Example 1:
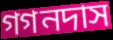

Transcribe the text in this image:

গগনদাস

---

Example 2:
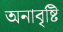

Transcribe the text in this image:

অনাবৃষ্টি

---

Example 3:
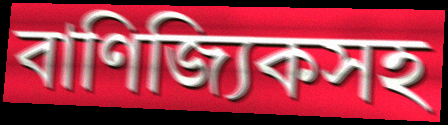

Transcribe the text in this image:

বাণিজ্যিকসহ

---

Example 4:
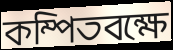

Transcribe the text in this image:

কম্পিতবক্ষে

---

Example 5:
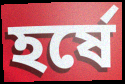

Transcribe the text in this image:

হর্ষে